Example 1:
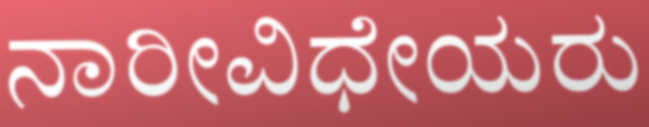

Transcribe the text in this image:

ನಾರೀವಿಧೇಯರು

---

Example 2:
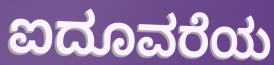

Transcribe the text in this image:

ಐದೂವರೆಯ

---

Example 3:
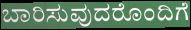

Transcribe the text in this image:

ಬಾರಿಸುವುದರೊಂದಿಗೆ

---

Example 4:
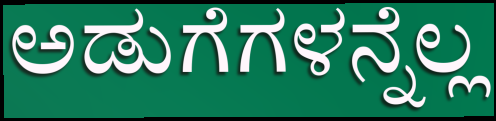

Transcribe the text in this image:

ಅಡುಗೆಗಳನ್ನೆಲ್ಲ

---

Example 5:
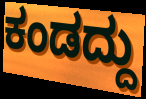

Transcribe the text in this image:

ಕಂಡದ್ದು